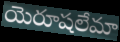
యెరూషలేమా